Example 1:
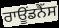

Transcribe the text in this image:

ਰਾਊਂਡਨੈੱਸ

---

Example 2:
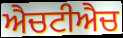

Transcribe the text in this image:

ਐਚਟੀਐਚ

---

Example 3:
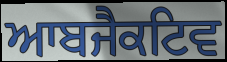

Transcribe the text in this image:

ਆਬਜੈਕਟਿਵ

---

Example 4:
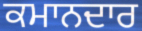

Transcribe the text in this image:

ਕਮਾਨਦਾਰ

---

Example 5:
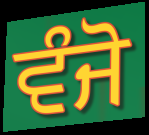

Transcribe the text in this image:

ਵੰਜੋ